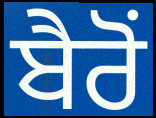
ਬੈਰੋਂ